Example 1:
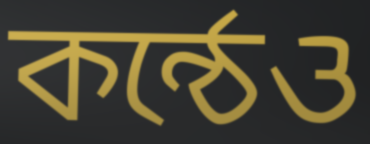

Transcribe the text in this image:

কন্ঠেও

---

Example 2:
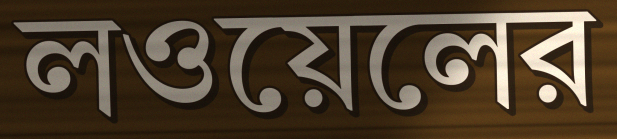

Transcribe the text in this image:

লওয়েলের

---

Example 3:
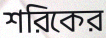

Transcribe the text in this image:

শরিকের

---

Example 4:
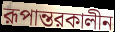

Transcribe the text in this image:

রূপান্তরকালীন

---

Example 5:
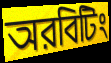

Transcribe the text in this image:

অরবিটিং